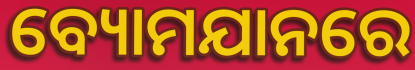
ବ୍ୟୋମଯାନରେ